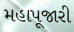
મહાપૂજારી